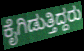
ಕೈಗಿಡುತ್ತಿದ್ದರು